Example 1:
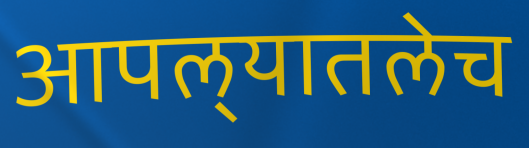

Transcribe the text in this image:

आपल्यातलेच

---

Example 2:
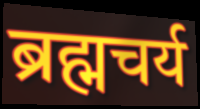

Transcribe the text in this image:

ब्रह्मचर्य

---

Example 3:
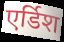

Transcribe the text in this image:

एर्डिश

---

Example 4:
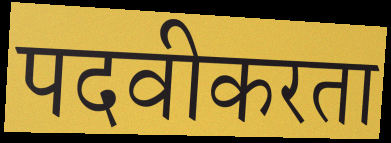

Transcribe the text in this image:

पदवीकरता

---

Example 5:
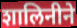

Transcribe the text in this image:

शालिनीने